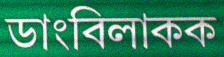
ডাংবিলাকক